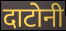
दाटोनी